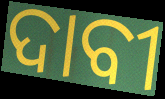
ଦାବୀ